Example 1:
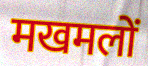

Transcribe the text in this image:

मखमलों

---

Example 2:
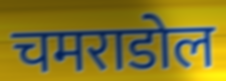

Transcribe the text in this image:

चमराडोल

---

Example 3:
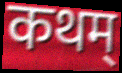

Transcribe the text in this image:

कथम्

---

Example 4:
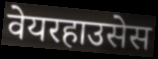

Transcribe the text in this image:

वेयरहाउसेस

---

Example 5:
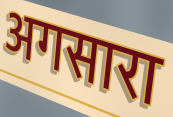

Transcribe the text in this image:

अगसारा